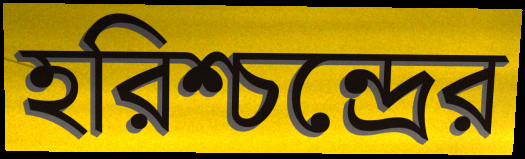
হরিশ্চন্দ্রের